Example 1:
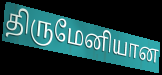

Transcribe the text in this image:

திருமேனியான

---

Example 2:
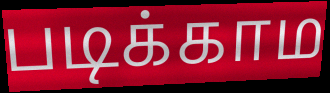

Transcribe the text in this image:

படிக்காம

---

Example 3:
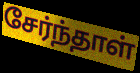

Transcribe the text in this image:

சேர்ந்தாள்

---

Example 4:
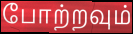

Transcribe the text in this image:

போற்றவும்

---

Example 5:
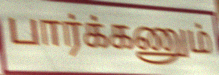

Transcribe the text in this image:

பார்க்கணும்